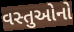
વસ્તુઓનો